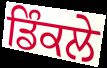
ਡਿੰਕਲੇ